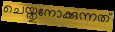
ചെയ്തുനോക്കുന്നത്